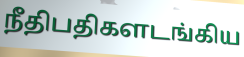
நீதிபதிகளடங்கிய